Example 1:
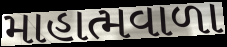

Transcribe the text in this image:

માહાત્મવાળા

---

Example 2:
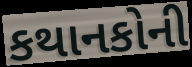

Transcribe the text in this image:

કથાનકોની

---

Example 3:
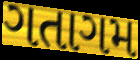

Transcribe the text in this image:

ગતાગમ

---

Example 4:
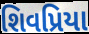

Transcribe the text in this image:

શિવપ્રિયા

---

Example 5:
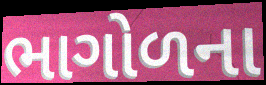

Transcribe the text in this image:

ભાગોળના